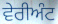
ਵੇਰੀਅੰਟ